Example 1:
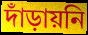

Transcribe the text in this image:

দাঁড়ায়নি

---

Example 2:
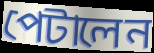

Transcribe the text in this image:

পেটালেন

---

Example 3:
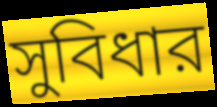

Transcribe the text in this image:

সুবিধার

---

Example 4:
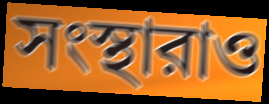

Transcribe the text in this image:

সংস্থারাও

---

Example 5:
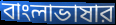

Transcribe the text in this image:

বাংলাভাষার